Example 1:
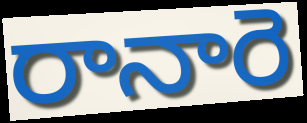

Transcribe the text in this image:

రానారె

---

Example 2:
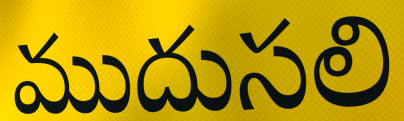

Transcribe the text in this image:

ముదుసలి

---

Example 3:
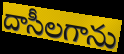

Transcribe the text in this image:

దాసీలగాను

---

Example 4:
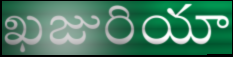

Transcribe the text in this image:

ఖజురియా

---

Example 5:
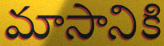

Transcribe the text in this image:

మాసానికి